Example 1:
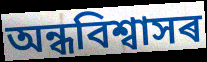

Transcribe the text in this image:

অন্ধবিশ্বাসৰ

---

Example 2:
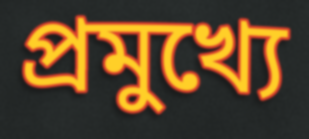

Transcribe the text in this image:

প্ৰমুখ্যে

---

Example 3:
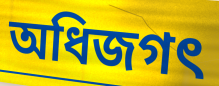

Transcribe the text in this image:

অধিজগৎ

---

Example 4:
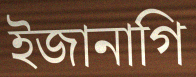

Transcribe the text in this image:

ইজানাগি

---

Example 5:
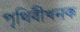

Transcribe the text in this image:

পৃথিবীখনক